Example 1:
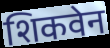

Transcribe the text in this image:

शिकवेन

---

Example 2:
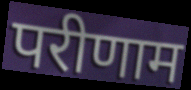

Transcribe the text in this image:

परीणाम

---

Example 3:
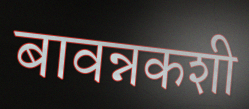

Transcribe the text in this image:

बावन्नकशी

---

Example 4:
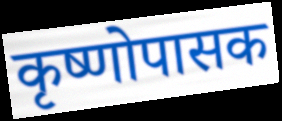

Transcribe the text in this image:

कृष्णोपासक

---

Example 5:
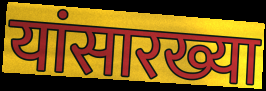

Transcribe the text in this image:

यांसारख्‍या